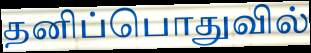
தனிப்பொதுவில்